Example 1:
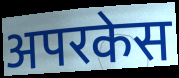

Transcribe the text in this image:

अपरकेस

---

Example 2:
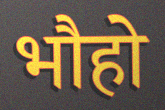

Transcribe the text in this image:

भौहो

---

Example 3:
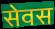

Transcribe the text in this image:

सेवस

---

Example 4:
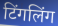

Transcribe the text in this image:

टिंगलिंग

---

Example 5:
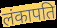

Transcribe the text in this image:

लंकापति